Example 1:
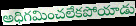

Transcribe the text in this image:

అధిగమించలేకపోయాడు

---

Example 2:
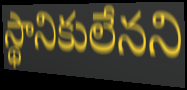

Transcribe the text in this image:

స్థానికులేనని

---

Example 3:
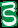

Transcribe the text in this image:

కె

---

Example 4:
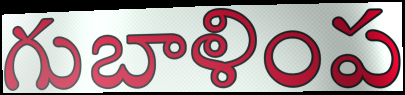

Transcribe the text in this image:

గుబాళింప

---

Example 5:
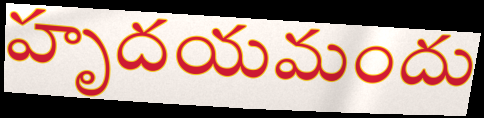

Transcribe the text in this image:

హృదయమందు